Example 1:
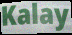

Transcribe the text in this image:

Kalay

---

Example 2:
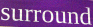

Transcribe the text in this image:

surround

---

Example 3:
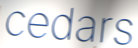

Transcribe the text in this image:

cedars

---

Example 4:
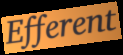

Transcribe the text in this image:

Efferent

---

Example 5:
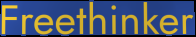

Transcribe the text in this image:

Freethinker